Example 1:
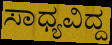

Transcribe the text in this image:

ಸಾಧ್ಯವಿದ್ದ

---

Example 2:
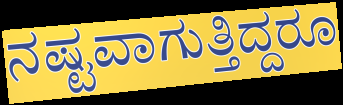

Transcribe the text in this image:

ನಷ್ಟವಾಗುತ್ತಿದ್ದರೂ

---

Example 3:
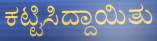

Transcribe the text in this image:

ಕಟ್ಟಿಸಿದ್ದಾಯಿತು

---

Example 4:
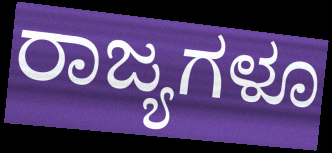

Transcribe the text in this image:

ರಾಜ್ಯಗಳೂ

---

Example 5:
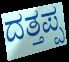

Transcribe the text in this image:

ದತ್ತಪ್ಪ